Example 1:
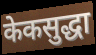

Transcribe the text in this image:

केकसुद्धा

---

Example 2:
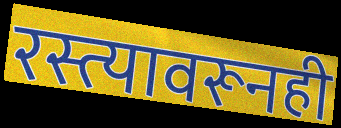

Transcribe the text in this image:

रस्त्यावरूनही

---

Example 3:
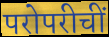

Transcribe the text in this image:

परोपरीचीं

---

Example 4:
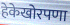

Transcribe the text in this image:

हेकेखोरपणा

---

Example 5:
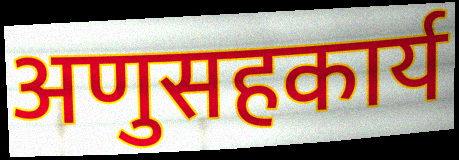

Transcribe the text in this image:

अणुसहकार्य